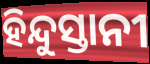
ହିନ୍ଦୁସ୍ତାନୀ